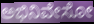
ಅಭಿನಿವೇಸೋ